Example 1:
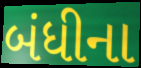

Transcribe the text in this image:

બંધીના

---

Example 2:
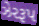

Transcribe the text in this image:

ઝેરરૂપ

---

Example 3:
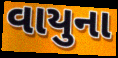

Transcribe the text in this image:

વાયુના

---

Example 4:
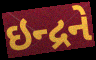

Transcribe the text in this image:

ઇન્દ્રને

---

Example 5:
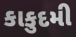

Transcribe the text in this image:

કાકુદમી